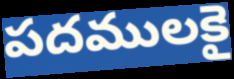
పదములకై